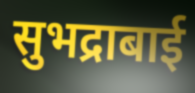
सुभद्राबाई